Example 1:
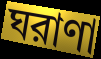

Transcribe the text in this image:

ঘরাণা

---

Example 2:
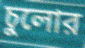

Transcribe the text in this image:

চুলোর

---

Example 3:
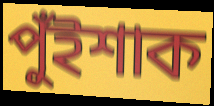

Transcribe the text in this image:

পুঁইশাক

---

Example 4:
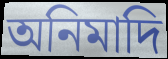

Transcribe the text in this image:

অনিমাদি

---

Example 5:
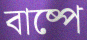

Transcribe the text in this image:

বাষ্পে